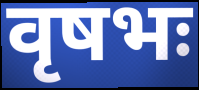
वृषभः